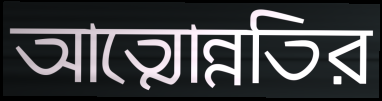
আত্মোন্নতির